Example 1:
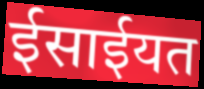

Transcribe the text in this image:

ईसाईयत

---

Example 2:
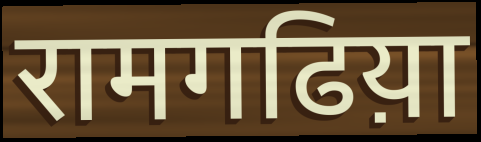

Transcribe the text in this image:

रामगढिय़ा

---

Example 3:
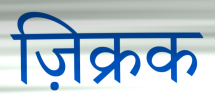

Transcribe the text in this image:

ज़िक्रक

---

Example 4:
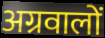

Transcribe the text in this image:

अग्रवालों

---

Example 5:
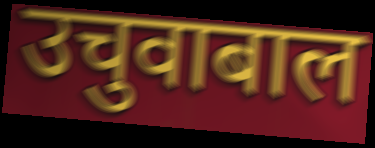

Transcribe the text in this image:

उचुवाबाल